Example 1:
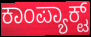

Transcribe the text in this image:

ಕಾಂಪ್ಯಾಕ್ಟ್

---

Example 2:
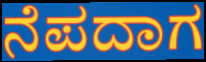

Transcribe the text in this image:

ನೆಪದಾಗ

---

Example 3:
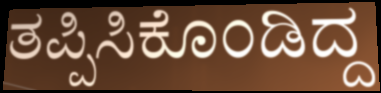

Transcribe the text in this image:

ತಪ್ಪಿಸಿಕೊಂಡಿದ್ದ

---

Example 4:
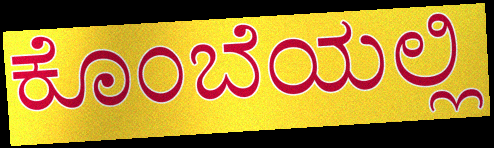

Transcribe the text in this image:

ಕೊಂಬೆಯಲ್ಲಿ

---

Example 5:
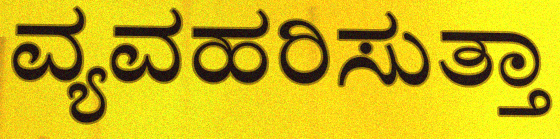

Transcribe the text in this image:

ವ್ಯವಹರಿಸುತ್ತಾ